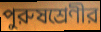
পুরুষশ্রেণীর